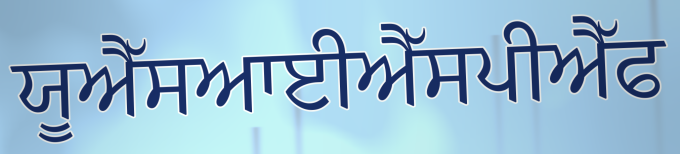
ਯੂਐੱਸਆਈਐੱਸਪੀਐੱਫ